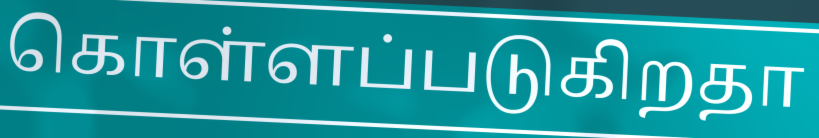
கொள்ளப்படுகிறதா